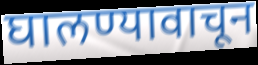
घालण्यावाचून